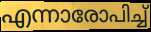
എന്നാരോപിച്ച്